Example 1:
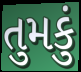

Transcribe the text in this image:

તુમકું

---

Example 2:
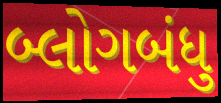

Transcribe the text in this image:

બ્લોગબંધુ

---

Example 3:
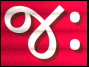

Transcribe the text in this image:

જઃ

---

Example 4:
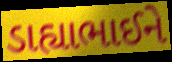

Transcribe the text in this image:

ડાહ્યાભાઈને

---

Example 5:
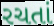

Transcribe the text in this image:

રચતાં